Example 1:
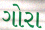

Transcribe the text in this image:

ગોરા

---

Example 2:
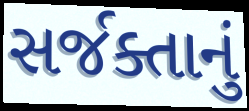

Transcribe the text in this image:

સર્જક્તાનું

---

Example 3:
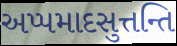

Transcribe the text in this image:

અપ્પમાદસુત્તન્તિ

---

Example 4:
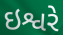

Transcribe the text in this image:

ઇશ્વરે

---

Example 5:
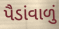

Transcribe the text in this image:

પૈડાંવાળું